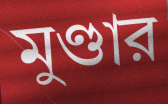
মুণ্ডার